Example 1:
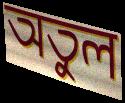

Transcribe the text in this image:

অতুল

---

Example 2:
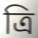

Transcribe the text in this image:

ত্রি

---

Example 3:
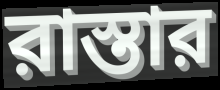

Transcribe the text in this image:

রাস্তার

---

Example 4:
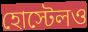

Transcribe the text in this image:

হোস্টেলও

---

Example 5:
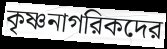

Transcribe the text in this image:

কৃষ্ণনাগরিকদের